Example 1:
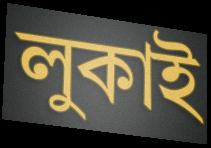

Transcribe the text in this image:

লুকাই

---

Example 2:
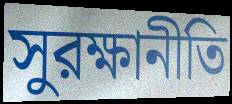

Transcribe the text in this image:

সুরক্ষানীতি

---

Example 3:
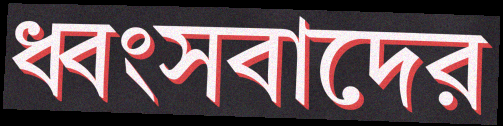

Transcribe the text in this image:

ধ্বংসবাদের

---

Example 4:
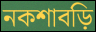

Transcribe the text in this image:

নকশাবড়ি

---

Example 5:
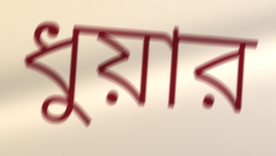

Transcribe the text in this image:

ধুয়ার